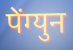
पेंग्युन